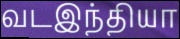
வடஇந்தியா